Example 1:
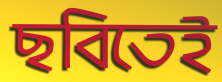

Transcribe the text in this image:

ছবিতেই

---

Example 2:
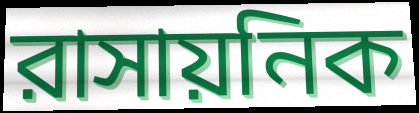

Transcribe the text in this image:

রাসায়নিক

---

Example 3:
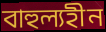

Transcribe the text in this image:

বাহুল্যহীন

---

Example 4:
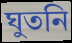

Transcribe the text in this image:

ঘুতনি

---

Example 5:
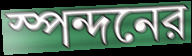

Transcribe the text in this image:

স্পন্দনের